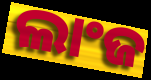
ଲାଂଜ